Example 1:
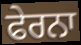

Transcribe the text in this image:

ਫੇਰਨਾ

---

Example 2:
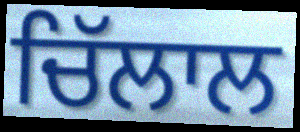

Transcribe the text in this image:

ਚਿੱਲਾਲ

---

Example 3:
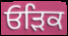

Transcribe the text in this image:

ਓੜਿਕ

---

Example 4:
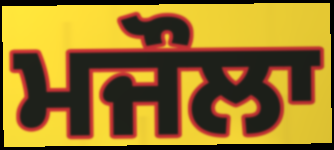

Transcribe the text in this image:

ਮਜੌਲਾ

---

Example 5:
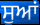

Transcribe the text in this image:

ਸੁਆਂ